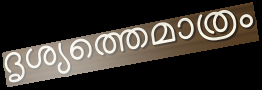
ദൃശ്യത്തെമാത്രം